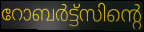
റോബർട്ട്സിന്റെ